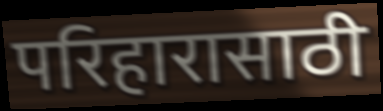
परिहारासाठी